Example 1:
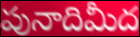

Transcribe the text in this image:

పునాదిమీద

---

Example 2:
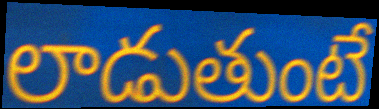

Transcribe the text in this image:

లాడుతుంటే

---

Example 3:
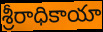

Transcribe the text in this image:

శ్రీరాధికాయా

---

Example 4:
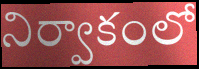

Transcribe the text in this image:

నిర్వాకంలో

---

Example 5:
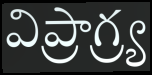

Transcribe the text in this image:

విప్రాగ్ర్య